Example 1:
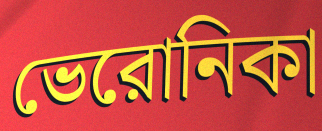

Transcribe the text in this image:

ভেরোনিকা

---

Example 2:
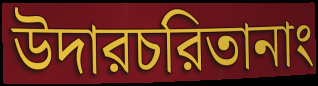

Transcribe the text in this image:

উদারচরিতানাং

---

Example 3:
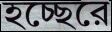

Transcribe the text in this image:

হচ্ছেরে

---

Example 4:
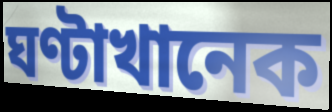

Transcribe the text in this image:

ঘণ্টাখানেক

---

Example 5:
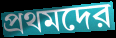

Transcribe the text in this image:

প্রথমদের